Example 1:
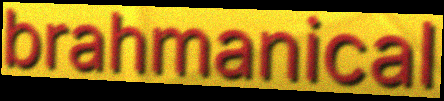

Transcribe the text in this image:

brahmanical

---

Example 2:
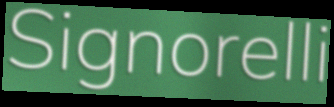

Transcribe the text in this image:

Signorelli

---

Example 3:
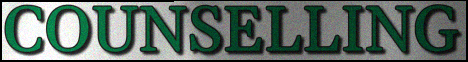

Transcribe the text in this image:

COUNSELLING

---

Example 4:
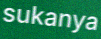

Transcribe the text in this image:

sukanya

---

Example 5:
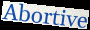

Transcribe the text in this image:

Abortive